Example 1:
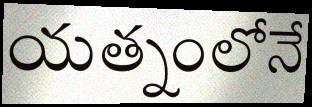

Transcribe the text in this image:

యత్నంలోనే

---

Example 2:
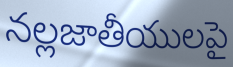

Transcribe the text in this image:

నల్లజాతీయులపై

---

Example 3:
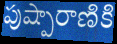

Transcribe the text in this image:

పుష్పారాణికి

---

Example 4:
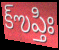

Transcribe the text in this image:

క్ఌప్తిః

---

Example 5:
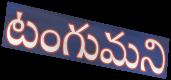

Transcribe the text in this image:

టంగుమని